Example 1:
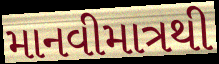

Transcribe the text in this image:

માનવીમાત્રથી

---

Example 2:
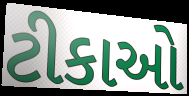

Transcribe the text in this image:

ટીકાઓ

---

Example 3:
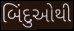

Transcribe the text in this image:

બિંદુઓથી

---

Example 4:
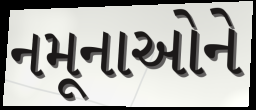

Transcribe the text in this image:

નમૂનાઓને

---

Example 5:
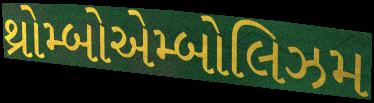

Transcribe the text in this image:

થ્રોમ્બોએમ્બોલિઝમ